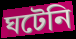
ঘটেনি